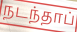
நடந்தாப்